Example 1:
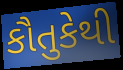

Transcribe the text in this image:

કૌતુકેથી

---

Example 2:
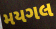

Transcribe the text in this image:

મયગલ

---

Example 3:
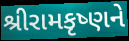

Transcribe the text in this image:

શ્રીરામકૃષ્ણને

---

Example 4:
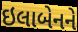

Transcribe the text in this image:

ઇલાબેનને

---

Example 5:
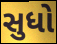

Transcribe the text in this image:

સુધો